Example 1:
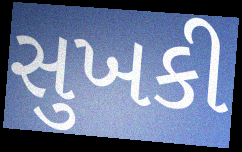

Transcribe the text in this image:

સુખકી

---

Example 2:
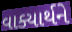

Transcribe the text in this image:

વાક્યાર્થને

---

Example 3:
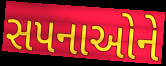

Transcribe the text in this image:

સપનાઓને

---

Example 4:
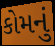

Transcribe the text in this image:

કોમનું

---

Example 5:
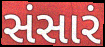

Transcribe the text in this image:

સંસારં